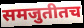
समजुतीतच